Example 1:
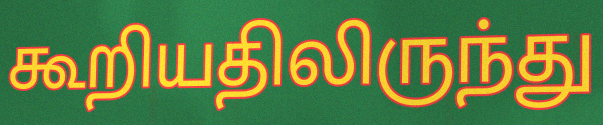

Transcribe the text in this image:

கூறியதிலிருந்து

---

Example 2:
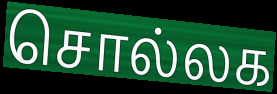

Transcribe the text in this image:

சொல்லக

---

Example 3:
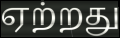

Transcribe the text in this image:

ஏற்றது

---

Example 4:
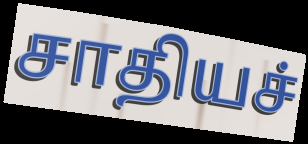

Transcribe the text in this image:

சாதியச்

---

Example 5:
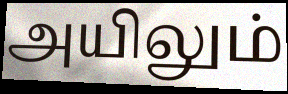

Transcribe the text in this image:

அயிலும்